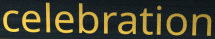
celebration